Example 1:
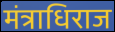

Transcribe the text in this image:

मंत्राधिराज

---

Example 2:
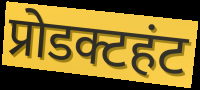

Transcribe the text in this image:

प्रोडक्टहंट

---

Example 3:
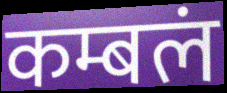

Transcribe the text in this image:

कम्बलं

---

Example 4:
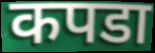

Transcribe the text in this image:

कपडा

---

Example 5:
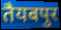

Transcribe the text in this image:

तैयबपुर